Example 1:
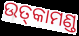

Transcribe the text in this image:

ଉତ୍‌କାମଣ୍ଡ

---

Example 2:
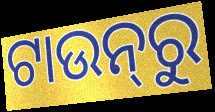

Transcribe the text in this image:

ଟାଉନ୍‌ରୁ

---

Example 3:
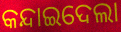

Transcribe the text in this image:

କନ୍ଦାଇଦେଲା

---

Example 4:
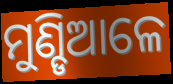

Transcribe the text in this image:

ମୁଣ୍ଡିଆଳେ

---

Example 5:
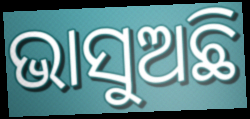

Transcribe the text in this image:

ଭାସୁଅଛି